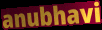
anubhavi